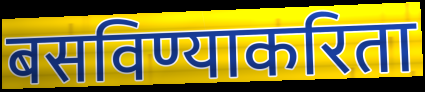
बसविण्याकरिता